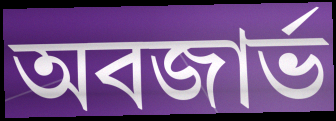
অবজার্ভ